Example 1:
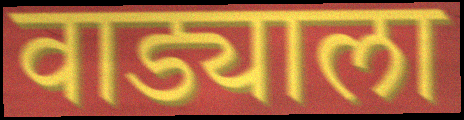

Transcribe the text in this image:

वाड्याला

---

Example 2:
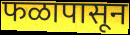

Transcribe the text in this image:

फळापासून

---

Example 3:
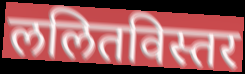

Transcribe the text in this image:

ललितविस्तर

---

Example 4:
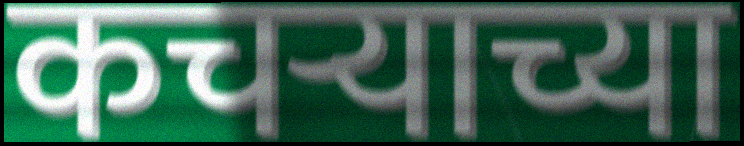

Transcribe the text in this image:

कचर्‍याच्या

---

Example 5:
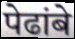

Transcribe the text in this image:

पेढांबे